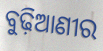
ବୁଢ଼ିଆଣୀର